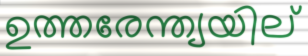
ഉത്തരേന്ത്യയില്